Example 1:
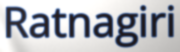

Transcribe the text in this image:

Ratnagiri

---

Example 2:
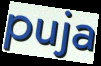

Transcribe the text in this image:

puja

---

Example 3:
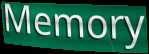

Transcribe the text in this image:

Memory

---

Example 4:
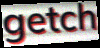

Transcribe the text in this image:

getch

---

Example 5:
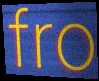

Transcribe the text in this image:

fro